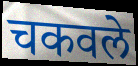
चकवले